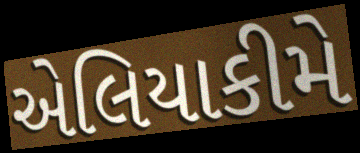
એલિયાકીમે